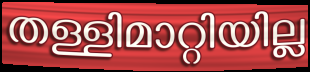
തള്ളിമാറ്റിയില്ല